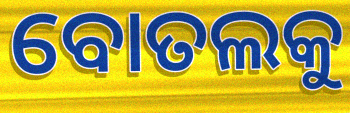
ବୋତଲକୁ